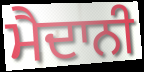
ਮੈਦਾਨੀ